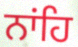
ਨਾਂਹਿ